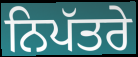
ਨਿਪੱਤਰੇ